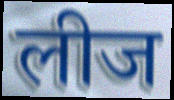
लीज